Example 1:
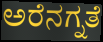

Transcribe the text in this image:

ಅರೆನಗ್ನತೆ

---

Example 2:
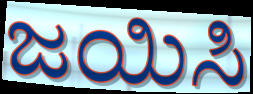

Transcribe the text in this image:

ಜಯಿಸಿ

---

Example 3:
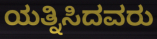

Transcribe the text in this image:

ಯತ್ನಿಸಿದವರು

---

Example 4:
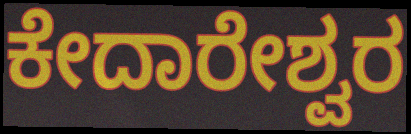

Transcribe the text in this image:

ಕೇದಾರೇಶ್ವರ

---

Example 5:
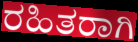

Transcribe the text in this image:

ರಹಿತರಾಗಿ